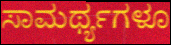
ಸಾಮರ್ಥ್ಯಗಳೂ